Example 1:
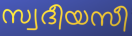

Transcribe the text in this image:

സ്വദീയസീ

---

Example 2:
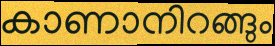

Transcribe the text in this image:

കാണാനിറങ്ങും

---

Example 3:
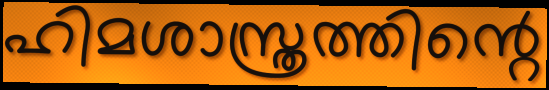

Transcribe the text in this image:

ഹിമശാസ്ത്രത്തിന്റെ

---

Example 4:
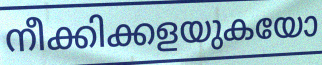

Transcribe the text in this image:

നീക്കിക്കളയുകയോ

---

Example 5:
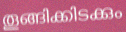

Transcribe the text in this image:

തൂങ്ങിക്കിടക്കും